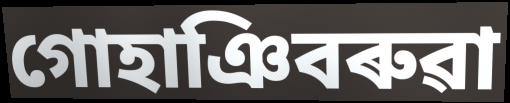
গোহাঞিবৰুৱা